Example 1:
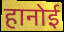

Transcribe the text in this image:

हानोई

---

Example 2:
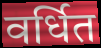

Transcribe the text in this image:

वर्धित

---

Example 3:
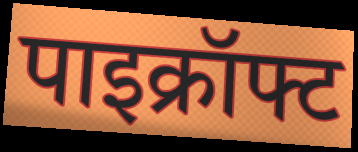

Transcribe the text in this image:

पाइक्रॉफ्ट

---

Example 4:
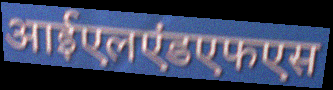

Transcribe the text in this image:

आईएलएंडएफएस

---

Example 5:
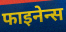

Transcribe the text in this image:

फाइनेन्स